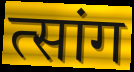
त्सांग